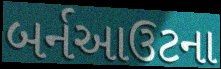
બર્નઆઉટના